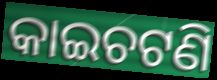
କାଇଚଟଣି